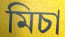
মিচা